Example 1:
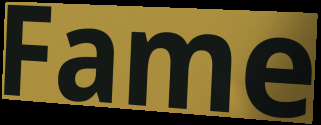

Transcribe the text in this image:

Fame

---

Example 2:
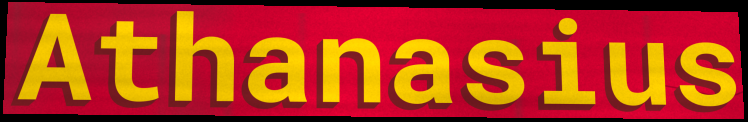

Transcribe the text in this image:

Athanasius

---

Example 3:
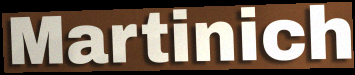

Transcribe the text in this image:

Martinich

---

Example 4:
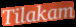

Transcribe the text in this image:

Tilakam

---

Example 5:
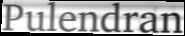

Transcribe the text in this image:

Pulendran